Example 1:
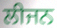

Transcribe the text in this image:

ਲੀਜਨ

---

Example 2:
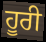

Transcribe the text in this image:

ਹੂਰੀ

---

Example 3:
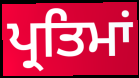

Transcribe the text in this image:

ਪ੍ਰਤਿਮਾਂ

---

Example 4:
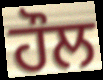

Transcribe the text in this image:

ਹੌਲ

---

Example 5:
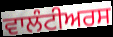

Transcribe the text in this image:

ਵਾਲੰਟੀਅਰਸ